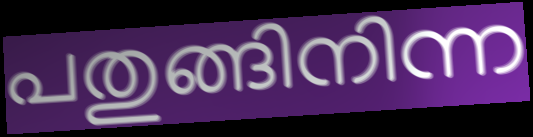
പതുങ്ങിനിന്ന